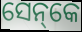
ସେନ୍‌କେ